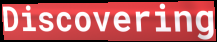
Discovering